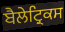
ਬੈਲੇਟ੍ਰਿਕਸ